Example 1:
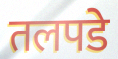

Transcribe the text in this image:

तलपडे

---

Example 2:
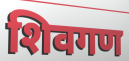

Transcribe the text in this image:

शिवगण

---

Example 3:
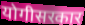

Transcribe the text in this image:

योगीसरकार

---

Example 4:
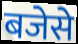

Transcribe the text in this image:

बजेसे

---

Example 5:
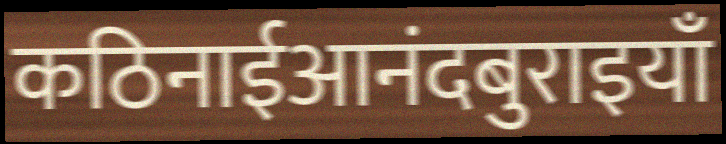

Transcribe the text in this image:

कठिनाईआनंदबुराइयाँ